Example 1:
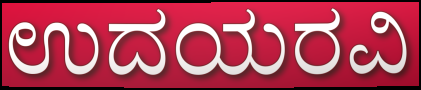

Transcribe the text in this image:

ಉದಯರವಿ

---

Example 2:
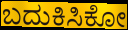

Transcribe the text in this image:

ಬದುಕಿಸಿಕೋ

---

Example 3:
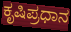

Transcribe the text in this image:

ಕೃಷಿಪ್ರಧಾನ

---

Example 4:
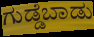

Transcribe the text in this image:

ಗುಡ್ಡೆಬಾಡು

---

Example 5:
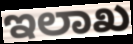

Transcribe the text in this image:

ಇಲಾಖ